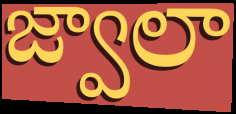
జ్వాలా